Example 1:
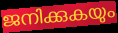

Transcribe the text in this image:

ജനിക്കുകയും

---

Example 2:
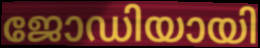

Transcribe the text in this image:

ജോഡിയായി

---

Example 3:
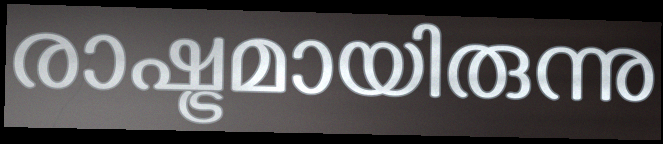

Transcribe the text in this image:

രാഷ്ട്രമായിരുന്നു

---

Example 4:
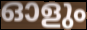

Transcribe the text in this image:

ഓളും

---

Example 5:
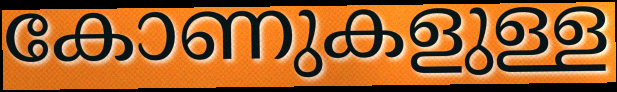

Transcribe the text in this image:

കോണുകളുള്ള